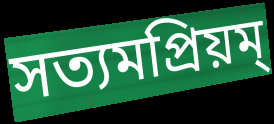
সত্যমপ্রিয়ম্